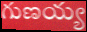
గుణయ్య